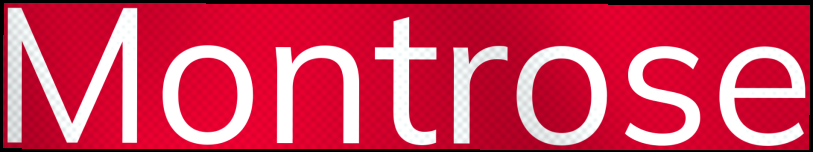
Montrose